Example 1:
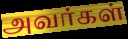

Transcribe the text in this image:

அவர்கள்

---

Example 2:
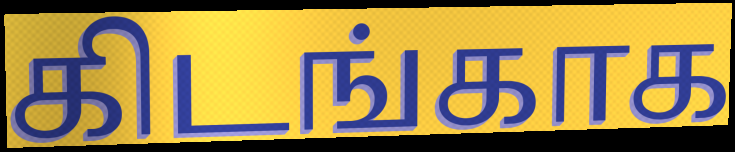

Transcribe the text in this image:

கிடங்காக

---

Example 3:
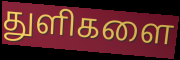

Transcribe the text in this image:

துளிகளை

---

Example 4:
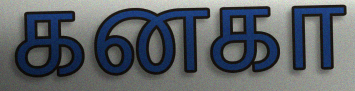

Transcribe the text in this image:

கனகா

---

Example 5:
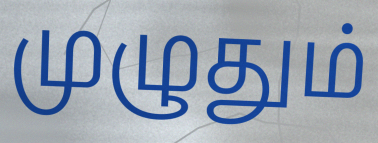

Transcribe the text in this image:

முழுதும்